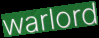
warlord